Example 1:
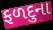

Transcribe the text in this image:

ફળદુના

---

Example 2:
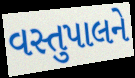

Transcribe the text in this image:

વસ્તુપાલને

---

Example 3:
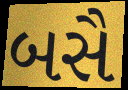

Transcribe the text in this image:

બસૈ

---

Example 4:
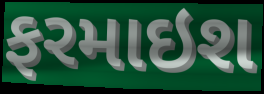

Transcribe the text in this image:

ફરમાઇશ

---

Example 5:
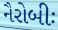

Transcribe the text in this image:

નૈરોબીઃ